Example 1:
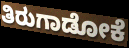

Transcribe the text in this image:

ತಿರುಗಾಡೋಕೆ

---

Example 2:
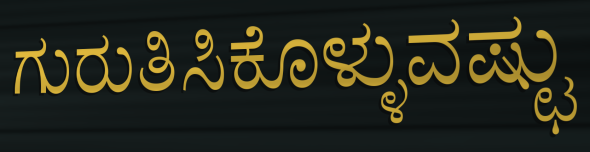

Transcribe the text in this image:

ಗುರುತಿಸಿಕೊಳ್ಳುವಷ್ಟು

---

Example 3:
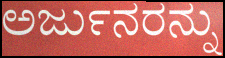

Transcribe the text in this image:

ಅರ್ಜುನರನ್ನು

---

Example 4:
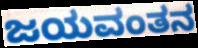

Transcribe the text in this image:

ಜಯವಂತನ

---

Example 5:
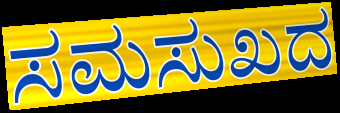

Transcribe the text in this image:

ಸಮಸುಖದ